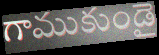
గాముకుండై